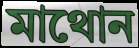
মাথোন